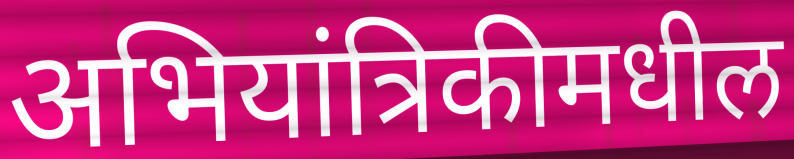
अभियांत्रिकीमधील